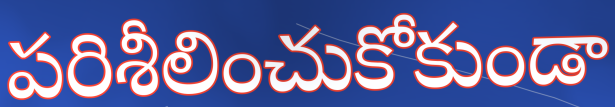
పరిశీలించుకోకుండా